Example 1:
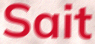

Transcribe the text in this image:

Sait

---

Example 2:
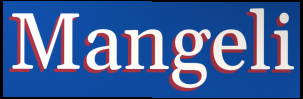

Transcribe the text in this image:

Mangeli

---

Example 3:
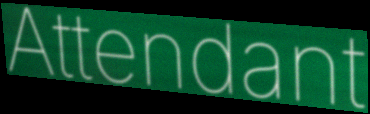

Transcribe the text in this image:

Attendant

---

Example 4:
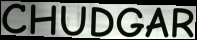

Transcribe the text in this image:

CHUDGAR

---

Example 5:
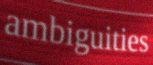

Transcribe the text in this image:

ambiguities